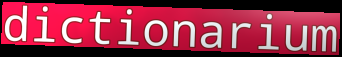
dictionarium